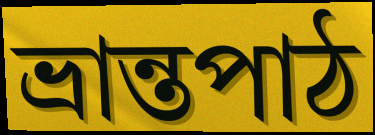
ভ্ৰান্তপাঠ